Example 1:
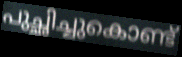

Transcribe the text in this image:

പുച്ഛിച്ചുകൊണ്ട്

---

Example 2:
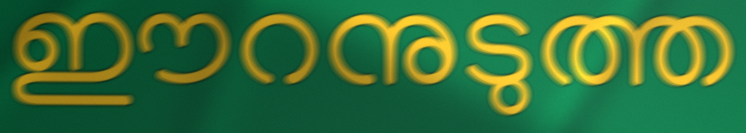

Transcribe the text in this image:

ഈറനുടുത്ത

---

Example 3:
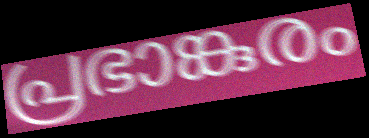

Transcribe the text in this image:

പ്രഭാങ്കുരം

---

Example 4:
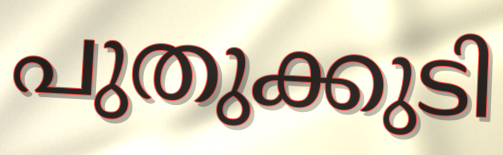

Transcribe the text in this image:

പുതുക്കുടി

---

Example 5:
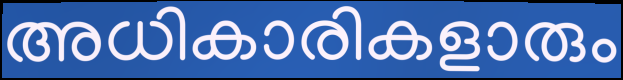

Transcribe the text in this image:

അധികാരികളാരും